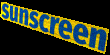
sunscreen